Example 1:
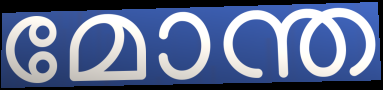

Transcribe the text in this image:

മോന്ത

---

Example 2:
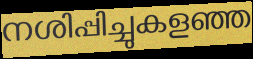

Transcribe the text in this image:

നശിപ്പിച്ചുകളഞ്ഞ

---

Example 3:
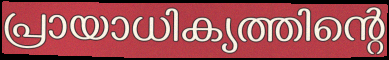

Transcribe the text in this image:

പ്രായാധിക്യത്തിന്റെ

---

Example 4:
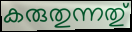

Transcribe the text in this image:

കരുതുന്നതു്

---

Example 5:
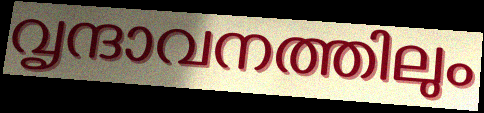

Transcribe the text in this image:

വൃന്ദാവനത്തിലും